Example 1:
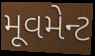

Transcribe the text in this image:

મૂવમેન્ટ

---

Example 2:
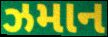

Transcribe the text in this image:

ઝમાન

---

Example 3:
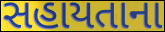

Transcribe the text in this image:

સહાયતાના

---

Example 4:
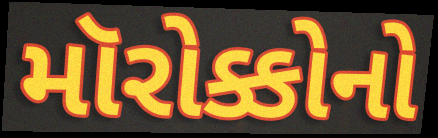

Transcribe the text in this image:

મૉરોક્કોનો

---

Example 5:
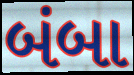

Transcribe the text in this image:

બંબા